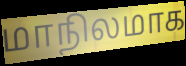
மாநிலமாக